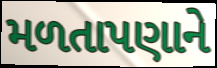
મળતાપણાને